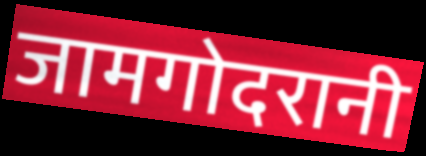
जामगोदरानी